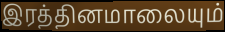
இரத்தினமாலையும்